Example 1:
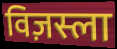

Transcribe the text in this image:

विज़स्ला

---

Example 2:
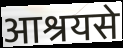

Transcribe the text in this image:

आश्रयसे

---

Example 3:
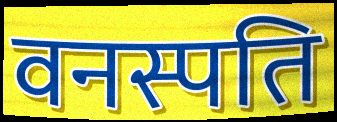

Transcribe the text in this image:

वनस्पति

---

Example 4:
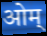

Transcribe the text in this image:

ओम्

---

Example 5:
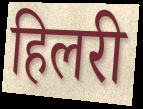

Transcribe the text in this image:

हिलरी